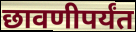
छावणीपर्यंत